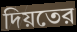
দিয়তের